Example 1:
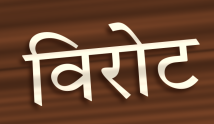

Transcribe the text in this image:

विरोट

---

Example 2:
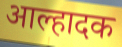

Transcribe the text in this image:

आल्हादक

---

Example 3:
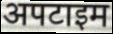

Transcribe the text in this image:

अपटाइम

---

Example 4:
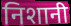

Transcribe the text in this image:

निशानी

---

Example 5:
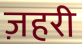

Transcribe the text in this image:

ज़हरी